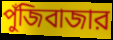
পুঁজিবাজার